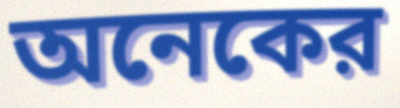
অনেকের